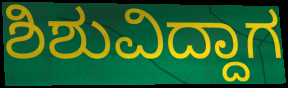
ಶಿಶುವಿದ್ದಾಗ